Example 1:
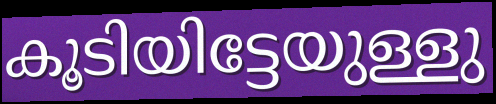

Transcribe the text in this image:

കൂടിയിട്ടേയുള്ളു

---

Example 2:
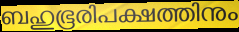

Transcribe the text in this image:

ബഹുഭൂരിപക്ഷത്തിനും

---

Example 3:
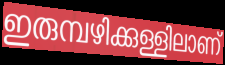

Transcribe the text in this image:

ഇരുമ്പഴിക്കുള്ളിലാണ്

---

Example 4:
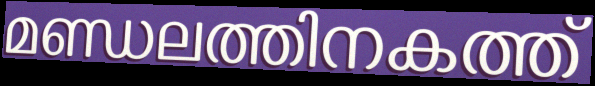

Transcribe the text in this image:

മണ്ഡലത്തിനകത്ത്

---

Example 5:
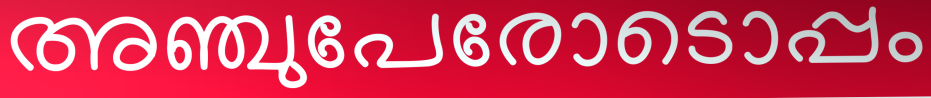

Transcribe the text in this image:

അഞ്ചുപേരോടൊപ്പം